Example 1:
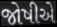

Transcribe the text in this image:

જોષીએ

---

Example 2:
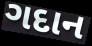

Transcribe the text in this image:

ગદાન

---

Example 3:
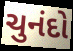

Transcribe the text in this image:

ચુનંદો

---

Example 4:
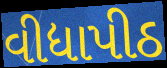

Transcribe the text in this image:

વીદ્યાપીઠ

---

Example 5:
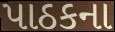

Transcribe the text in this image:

પાઠકના